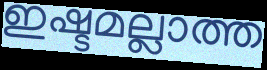
ഇഷ്ടമല്ലാത്ത